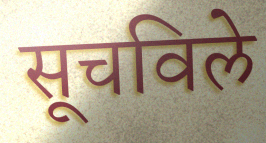
सूचविले